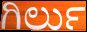
ಗಿರ್ಲು